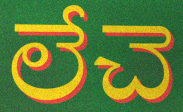
లేచె